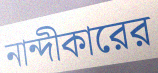
নান্দীকারের